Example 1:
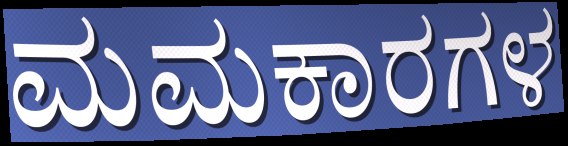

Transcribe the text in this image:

ಮಮಕಾರಗಳ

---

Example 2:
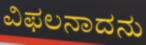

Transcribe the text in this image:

ವಿಫಲನಾದನು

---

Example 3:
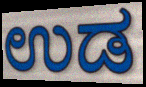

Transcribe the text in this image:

ಉಡ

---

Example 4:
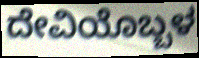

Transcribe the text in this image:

ದೇವಿಯೊಬ್ಬಳ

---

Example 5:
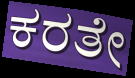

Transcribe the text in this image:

ಕರತೇ